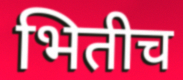
भितीच